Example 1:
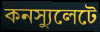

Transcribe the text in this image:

কনস্যুলেটে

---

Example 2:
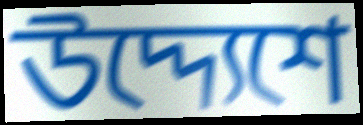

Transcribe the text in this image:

উদ্দ্যেশে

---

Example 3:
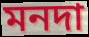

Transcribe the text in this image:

মনদা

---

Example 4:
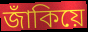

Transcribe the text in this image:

জাঁকিয়ে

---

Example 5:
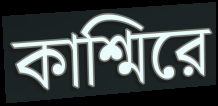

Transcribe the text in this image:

কাশ্মিরে